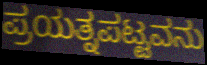
ಪ್ರಯತ್ನಪಟ್ಟವನು